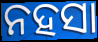
ନହସା